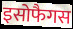
इसोफैगस